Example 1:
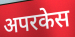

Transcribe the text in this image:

अपरकेस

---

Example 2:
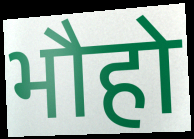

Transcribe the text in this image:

भौहो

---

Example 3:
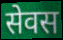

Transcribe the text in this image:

सेवस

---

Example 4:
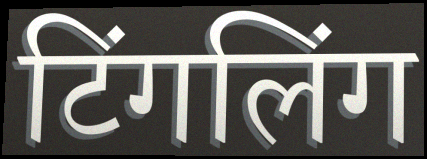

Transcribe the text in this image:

टिंगलिंग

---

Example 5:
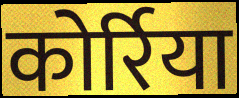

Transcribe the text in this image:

कोर्रिया